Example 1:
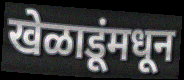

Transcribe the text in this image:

खेळाडूंमधून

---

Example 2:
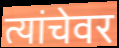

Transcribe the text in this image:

त्यांचेवर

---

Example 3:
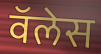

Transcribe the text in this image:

वॅलेस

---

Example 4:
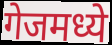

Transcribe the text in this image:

गेजमध्ये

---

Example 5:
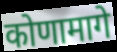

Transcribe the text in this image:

कोणामागे